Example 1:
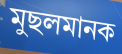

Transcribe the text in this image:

মুছলমানক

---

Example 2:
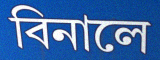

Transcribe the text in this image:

বিনালে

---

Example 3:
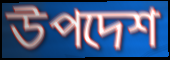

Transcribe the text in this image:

উপদেশ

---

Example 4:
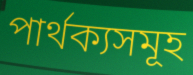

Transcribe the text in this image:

পাৰ্থক্যসমূহ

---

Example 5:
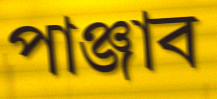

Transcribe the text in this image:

পাঞ্জাব